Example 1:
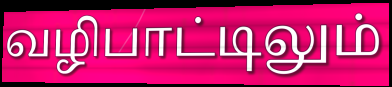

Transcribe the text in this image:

வழிபாட்டிலும்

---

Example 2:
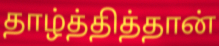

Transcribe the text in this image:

தாழ்த்தித்தான்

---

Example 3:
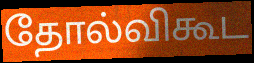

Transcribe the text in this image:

தோல்விகூட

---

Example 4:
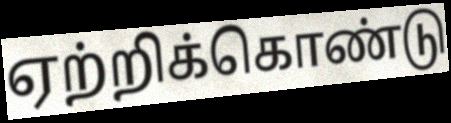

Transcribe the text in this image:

ஏற்றிக்கொண்டு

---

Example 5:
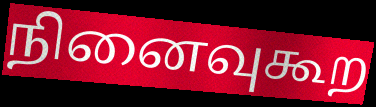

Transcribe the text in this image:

நினைவுகூற